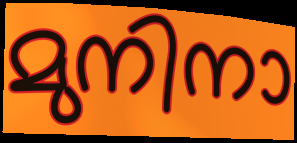
മുനിനാ